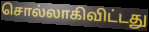
சொல்லாகிவிட்டது